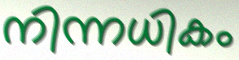
നിന്നധികം